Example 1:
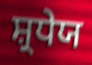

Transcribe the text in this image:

ਸ਼੍ਰਧੇਯ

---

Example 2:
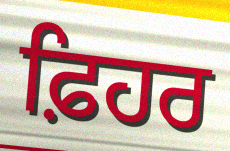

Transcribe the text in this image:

ਫ਼ਿਹਰ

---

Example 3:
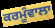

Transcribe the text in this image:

ਕਰਮੂੰਵਾਲਾ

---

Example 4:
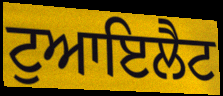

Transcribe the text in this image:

ਟੁਆਇਲੈਟ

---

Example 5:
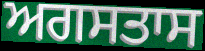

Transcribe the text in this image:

ਅਗਸਤਾਸ